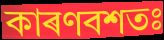
কাৰণবশতঃ